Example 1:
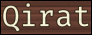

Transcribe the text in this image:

Qirat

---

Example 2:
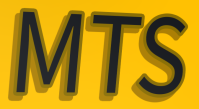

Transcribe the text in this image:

MTS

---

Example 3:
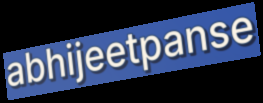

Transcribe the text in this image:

abhijeetpanse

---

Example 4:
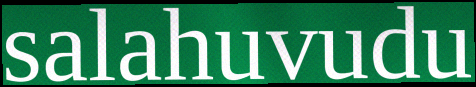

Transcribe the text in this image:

salahuvudu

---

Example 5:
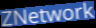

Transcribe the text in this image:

ZNetwork